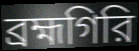
ব্রহ্মগিরি